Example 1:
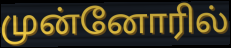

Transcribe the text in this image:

முன்னோரில்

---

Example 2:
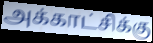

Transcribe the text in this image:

அக்காட்சிக்கு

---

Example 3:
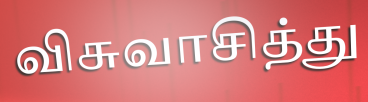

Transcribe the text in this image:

விசுவாசித்து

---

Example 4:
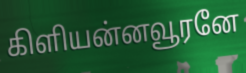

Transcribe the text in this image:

கிளியன்னவூரனே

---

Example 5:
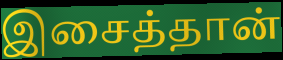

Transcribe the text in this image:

இசைத்தான்